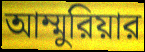
আম্মুরিয়ার